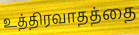
உத்திரவாதத்தை